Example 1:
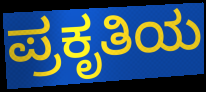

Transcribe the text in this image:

ಪ್ರಕೃತಿಯ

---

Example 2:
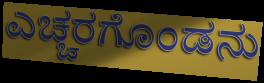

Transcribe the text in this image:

ಎಚ್ಚರಗೊಂಡನು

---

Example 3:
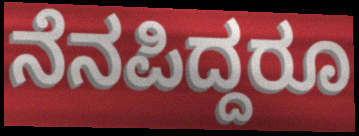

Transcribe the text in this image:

ನೆನಪಿದ್ದರೂ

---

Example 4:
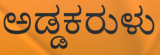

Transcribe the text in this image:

ಅಡ್ಡಕರುಳು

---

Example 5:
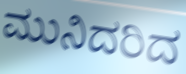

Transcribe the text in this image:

ಮುನಿದರಿದ